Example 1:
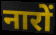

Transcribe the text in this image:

नारों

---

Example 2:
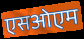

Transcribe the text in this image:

एसओएम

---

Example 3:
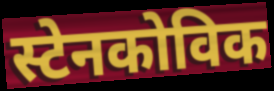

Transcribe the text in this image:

स्टेनकोविक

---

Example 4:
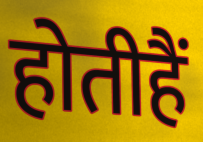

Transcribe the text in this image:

होतीहैं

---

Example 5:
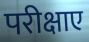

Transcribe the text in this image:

परीक्षाए